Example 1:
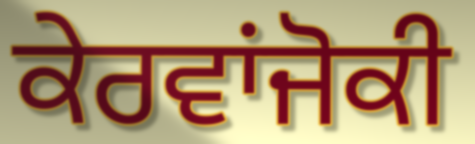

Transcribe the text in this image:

ਕੇਰਵਾਂਜੋਕੀ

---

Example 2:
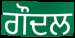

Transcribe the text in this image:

ਗੌਦਲ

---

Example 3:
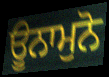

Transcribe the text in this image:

ਊਨਾਮੁਨੋ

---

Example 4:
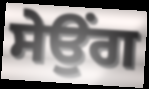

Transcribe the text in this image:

ਸੇਉਂਗ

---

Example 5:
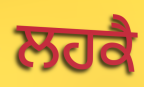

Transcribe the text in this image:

ਲਹਕੈ